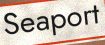
Seaport